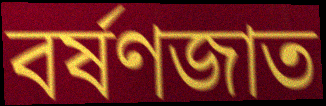
বর্ষণজাত